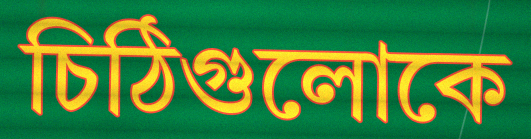
চিঠিগুলোকে